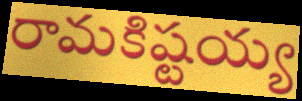
రామకిష్టయ్య